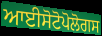
ਆਈਸੋਟੋਪੋਲੋਗਸ